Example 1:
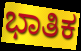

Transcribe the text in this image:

ಭಾತಿಕ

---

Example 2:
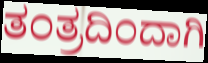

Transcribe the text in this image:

ತಂತ್ರದಿಂದಾಗಿ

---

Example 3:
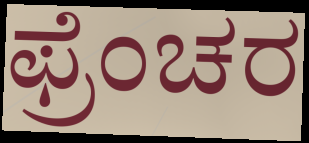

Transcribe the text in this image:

ಫ್ರೆಂಚರ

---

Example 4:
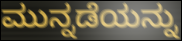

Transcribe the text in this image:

ಮುನ್ನಡೆಯನ್ನು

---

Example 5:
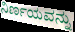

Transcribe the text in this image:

ನಿರ್ಣಯವನ್ನು